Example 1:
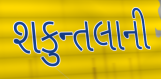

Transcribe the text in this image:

શકુન્તલાની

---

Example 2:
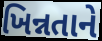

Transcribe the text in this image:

ખિન્નતાને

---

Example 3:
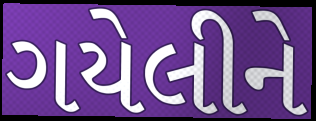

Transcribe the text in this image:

ગયેલીને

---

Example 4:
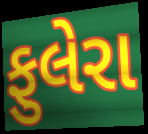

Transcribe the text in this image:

ફુલેરા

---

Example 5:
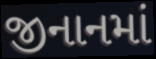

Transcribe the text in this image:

જીનાનમાં